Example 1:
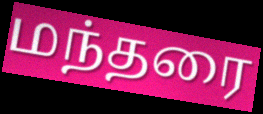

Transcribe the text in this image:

மந்தரை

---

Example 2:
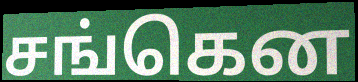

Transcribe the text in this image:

சங்கென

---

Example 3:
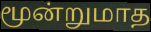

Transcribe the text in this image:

மூன்றுமாத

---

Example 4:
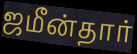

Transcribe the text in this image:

ஜமீன்தார்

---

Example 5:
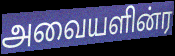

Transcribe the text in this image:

அவையளின்ர